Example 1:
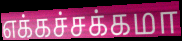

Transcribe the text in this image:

எக்கச்சக்கமா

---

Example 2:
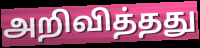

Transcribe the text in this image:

அறிவித்தது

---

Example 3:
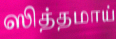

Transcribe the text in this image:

ஸித்தமாய்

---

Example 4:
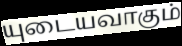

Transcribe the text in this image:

யுடையவாகும்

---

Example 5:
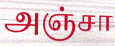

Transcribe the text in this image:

அஞ்சா